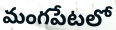
మంగపేటలో